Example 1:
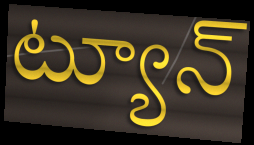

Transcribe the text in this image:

ట్యూన్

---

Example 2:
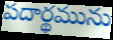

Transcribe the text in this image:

పదార్థమును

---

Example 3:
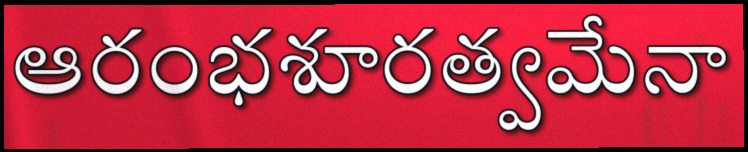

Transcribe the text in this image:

ఆరంభశూరత్వమేనా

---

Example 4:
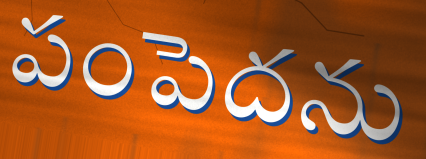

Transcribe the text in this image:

పంపెదను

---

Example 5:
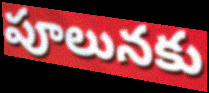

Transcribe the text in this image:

పూలునకు